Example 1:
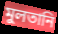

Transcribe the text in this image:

মুলতানি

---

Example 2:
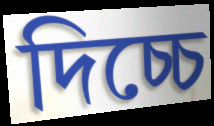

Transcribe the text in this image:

দিচ্চে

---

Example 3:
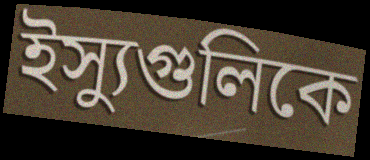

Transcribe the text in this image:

ইস্যুগুলিকে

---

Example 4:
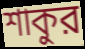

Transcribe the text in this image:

শাকুর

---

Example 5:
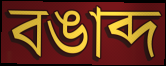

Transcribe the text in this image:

বঙাব্দ